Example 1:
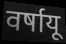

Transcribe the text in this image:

वर्षायू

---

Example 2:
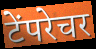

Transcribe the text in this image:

टेंपरेचर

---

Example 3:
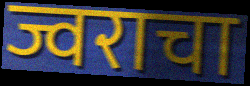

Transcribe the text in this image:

ज्वराचा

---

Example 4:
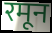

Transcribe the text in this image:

रमून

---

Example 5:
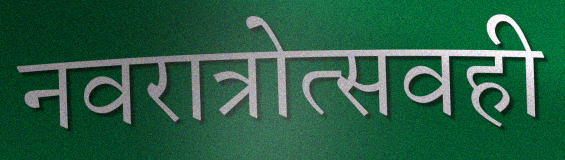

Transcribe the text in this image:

नवरात्रोत्सवही